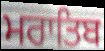
ਮਰਾਤਿਬ